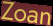
Zoan